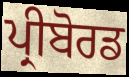
ਪ੍ਰੀਬੋਰਡ